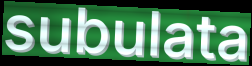
subulata